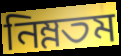
নিম্নতম